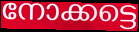
നോക്കട്ടെ